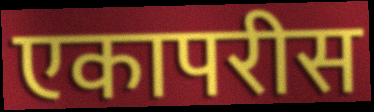
एकापरीस